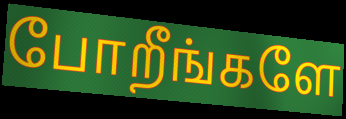
போறீங்களே